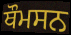
ਥੌਮਸਨ